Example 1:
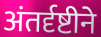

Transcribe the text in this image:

अंतर्दृष्टीने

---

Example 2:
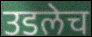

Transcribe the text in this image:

उडलेच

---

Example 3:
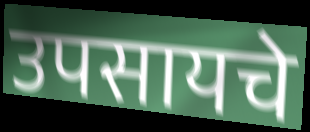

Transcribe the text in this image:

उपसायचे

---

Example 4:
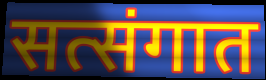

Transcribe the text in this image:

सत्संगात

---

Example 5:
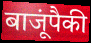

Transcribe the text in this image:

बाजूंपैकी